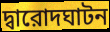
দ্বারোদঘাটন